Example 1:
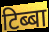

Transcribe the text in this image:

टिब्बा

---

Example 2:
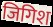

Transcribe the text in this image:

जिगिश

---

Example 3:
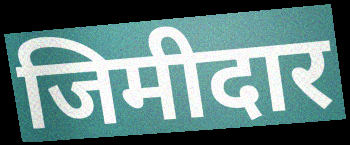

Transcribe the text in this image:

जिमीदार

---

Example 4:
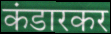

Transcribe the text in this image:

कंडारकर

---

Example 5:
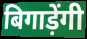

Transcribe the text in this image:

बिगाड़ेंगी